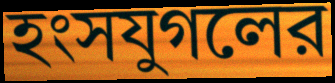
হংসযুগলের